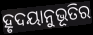
ହୃଦୟାନୁଭୂତିର